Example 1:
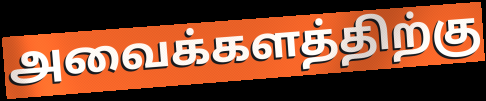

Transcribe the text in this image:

அவைக்களத்திற்கு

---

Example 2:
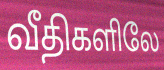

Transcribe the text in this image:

வீதிகளிலே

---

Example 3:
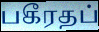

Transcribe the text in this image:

பகீரதப்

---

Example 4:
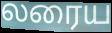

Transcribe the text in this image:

லரைய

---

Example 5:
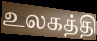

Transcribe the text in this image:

உலகத்தி